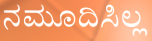
ನಮೂದಿಸಿಲ್ಲ